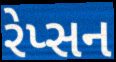
રેપ્સન